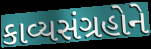
કાવ્યસંગ્રહોને